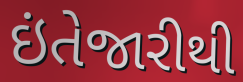
ઇંતેજારીથી